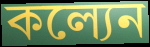
কল্যেন